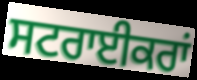
ਸਟਰਾਈਕਰਾਂ